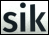
sik